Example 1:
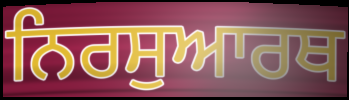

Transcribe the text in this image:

ਨਿਰਸੁਆਰਥ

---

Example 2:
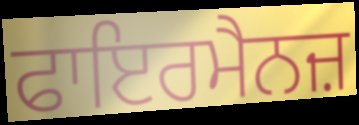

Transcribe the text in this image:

ਫਾਇਰਮੈਨਜ਼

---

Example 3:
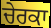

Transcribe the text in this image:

ਚੇਰਕਾ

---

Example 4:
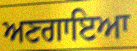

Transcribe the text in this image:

ਅਣਗਾਇਆ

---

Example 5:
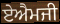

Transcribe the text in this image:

ਏਐਮਜੀ